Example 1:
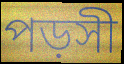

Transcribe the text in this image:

পড়সী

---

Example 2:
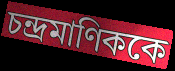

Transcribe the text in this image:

চন্দ্রমাণিককে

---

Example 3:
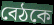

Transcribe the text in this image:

বেঠকে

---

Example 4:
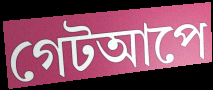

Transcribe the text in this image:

গেটআপে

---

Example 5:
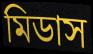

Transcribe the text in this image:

মিডাস